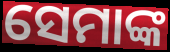
ସେମାଙ୍କ